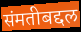
संमतीबद्दल